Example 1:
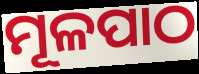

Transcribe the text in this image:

ମୂଳପାଠ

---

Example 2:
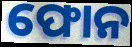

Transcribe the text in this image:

ଫୋନ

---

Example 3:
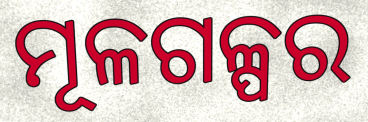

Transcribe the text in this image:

ମୂଳଗଳ୍ପର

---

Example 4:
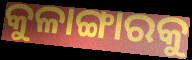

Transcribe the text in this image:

କୁଳାଙ୍ଗାରକୁ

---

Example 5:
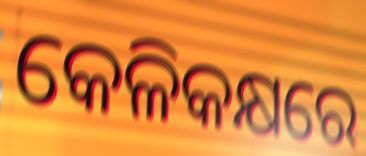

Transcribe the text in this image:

କେଳିକକ୍ଷରେ